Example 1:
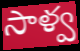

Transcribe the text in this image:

సాళ్వ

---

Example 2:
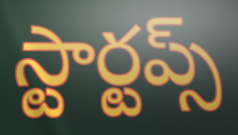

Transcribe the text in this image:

స్టార్టప్స్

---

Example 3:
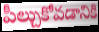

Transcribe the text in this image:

పీల్చుకోవడానికి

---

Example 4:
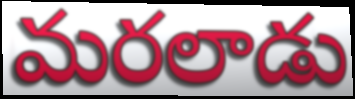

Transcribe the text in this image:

మరలాడు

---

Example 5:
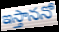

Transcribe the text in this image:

ఇస్తాననో